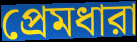
প্রেমধারা